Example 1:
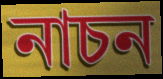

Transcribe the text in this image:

নাচন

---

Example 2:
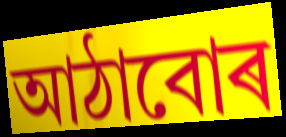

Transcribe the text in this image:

আঠাবোৰ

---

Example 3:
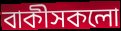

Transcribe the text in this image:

বাকীসকলো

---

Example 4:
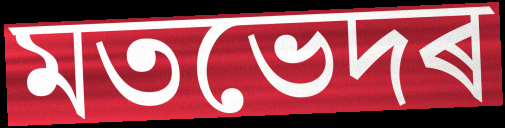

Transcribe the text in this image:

মতভেদৰ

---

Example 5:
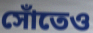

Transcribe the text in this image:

সোঁতেও